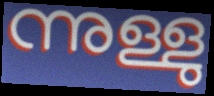
ന്നുള്ളു